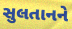
સુલતાનને